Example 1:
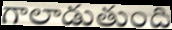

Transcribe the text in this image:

గాలాడుతుంది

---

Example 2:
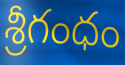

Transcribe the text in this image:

శ్రీగంధం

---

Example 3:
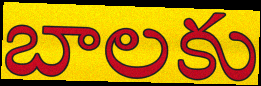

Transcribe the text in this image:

బాలకు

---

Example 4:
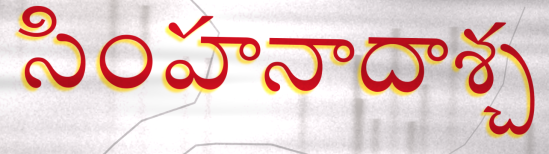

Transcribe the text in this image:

సింహనాదాశ్చ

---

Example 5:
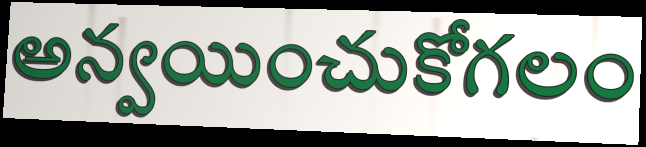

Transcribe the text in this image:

అన్వయించుకోగలం